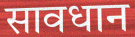
सावधान